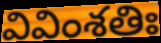
వివింశతిః